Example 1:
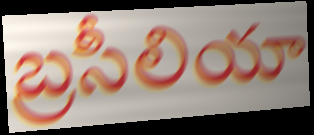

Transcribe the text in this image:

బ్రసీలియా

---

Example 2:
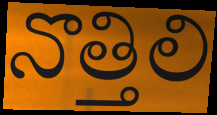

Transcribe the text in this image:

నొత్తిలి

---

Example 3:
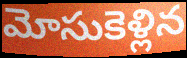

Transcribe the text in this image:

మోసుకెళ్లిన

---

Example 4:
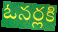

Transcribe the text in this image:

ఓనర్లకి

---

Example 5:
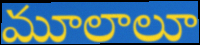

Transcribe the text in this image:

మూలాలూ